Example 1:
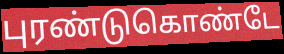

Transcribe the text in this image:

புரண்டுகொண்டே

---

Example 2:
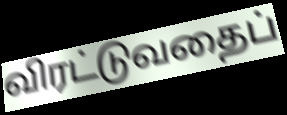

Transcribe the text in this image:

விரட்டுவதைப்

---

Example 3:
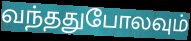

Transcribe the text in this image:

வந்ததுபோலவும்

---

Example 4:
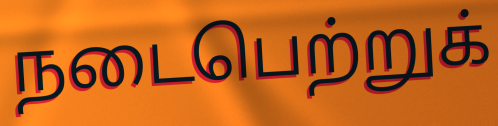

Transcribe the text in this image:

நடைபெற்றுக்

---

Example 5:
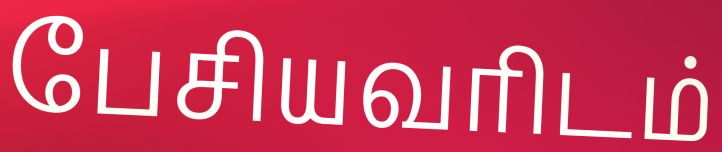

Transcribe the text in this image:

பேசியவரிடம்